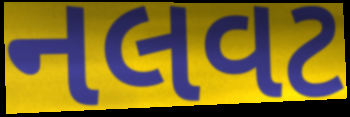
નલવટ